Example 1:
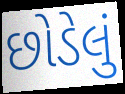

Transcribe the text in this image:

છોડેલું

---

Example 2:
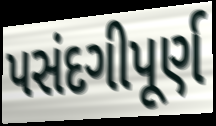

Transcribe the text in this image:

પસંદગીપૂર્ણ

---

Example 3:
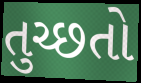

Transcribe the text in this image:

તુચ્છતો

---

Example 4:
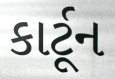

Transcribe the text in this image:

કાર્ટૂન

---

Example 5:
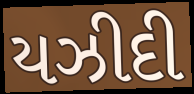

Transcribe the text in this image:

યઝીદી